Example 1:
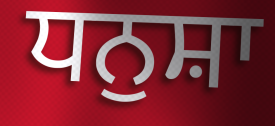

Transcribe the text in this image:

ਧਨੁਸ਼ਾ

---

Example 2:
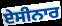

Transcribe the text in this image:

ਏਸੀਨਾਰ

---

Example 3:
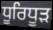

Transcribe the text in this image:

ਧੂਰਿਧੂੜ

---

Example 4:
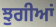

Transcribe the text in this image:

ਝੁਗੀਆਂ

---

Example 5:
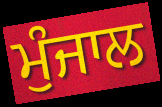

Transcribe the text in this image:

ਮੁੰਜਾਲ